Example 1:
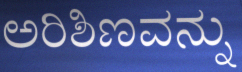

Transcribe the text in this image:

ಅರಿಶಿಣವನ್ನು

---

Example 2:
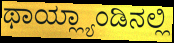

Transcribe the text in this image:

ಥಾಯ್ಲ್ಯಾಂಡಿನಲ್ಲಿ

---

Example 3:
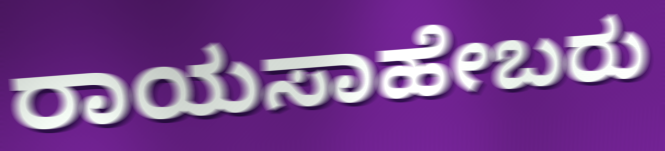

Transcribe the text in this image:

ರಾಯಸಾಹೇಬರು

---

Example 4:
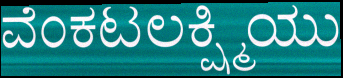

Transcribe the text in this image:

ವೆಂಕಟಲಕ್ಷ್ಮಿಯು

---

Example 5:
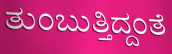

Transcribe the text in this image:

ತುಂಬುತ್ತಿದ್ದಂತೆ